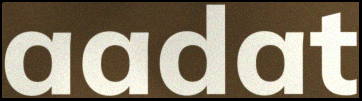
aadat